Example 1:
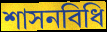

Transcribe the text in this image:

শাসনবিধি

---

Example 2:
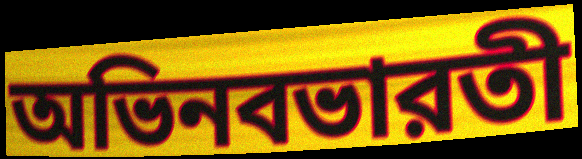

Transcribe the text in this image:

অভিনবভারতী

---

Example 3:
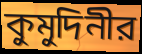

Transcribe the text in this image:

কুমুদিনীর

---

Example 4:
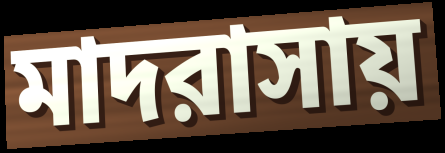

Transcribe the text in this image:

মাদরাসায়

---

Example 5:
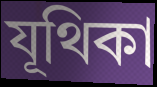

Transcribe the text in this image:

যূথিকা